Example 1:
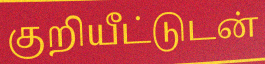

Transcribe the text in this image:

குறியீட்டுடன்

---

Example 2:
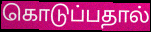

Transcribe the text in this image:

கொடுப்பதால்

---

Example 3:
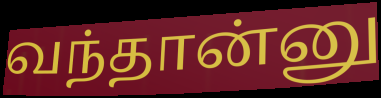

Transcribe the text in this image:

வந்தான்னு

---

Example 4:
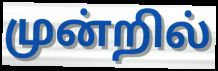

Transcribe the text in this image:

முன்றில்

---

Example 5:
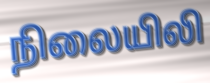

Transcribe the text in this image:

நிலையிலி